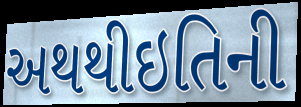
અથથીઇતિની